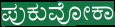
ಪುಕುವೋಕಾ